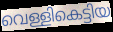
വെള്ളികെട്ടിയ